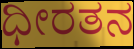
ಧೀರತನ